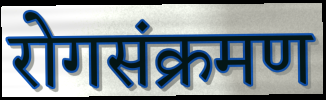
रोगसंक्रमण